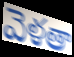
వెళతా